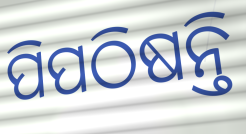
ପିପଠିଷନ୍ତି